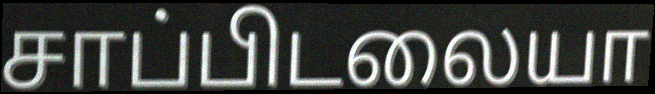
சாப்பிடலையா